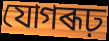
যোগৰূঢ়